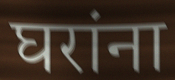
घरांना